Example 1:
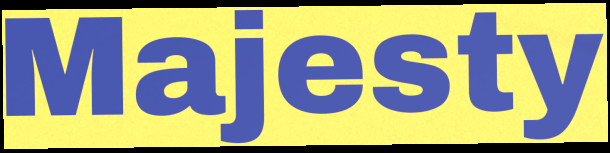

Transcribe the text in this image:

Majesty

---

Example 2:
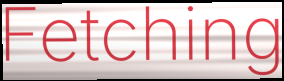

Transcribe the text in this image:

Fetching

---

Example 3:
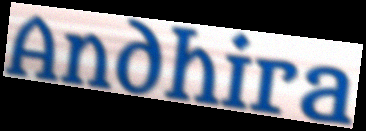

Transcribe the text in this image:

Andhira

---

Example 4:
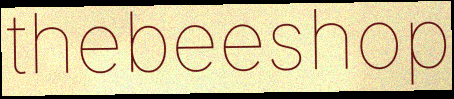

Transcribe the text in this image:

thebeeshop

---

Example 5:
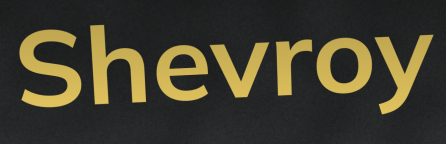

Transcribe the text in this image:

Shevroy